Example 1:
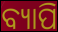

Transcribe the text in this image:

ବ୍ଯାପି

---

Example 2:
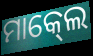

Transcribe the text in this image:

ମାକ୍‍ଲେ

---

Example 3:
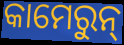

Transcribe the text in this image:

କାମେରୁନ୍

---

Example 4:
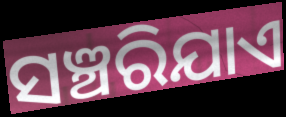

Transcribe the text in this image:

ସଞ୍ଚରିଯାଏ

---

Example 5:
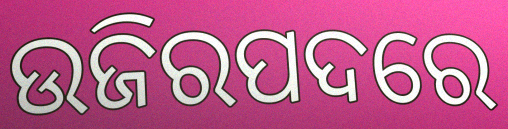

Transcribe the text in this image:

ଉଜିରପଦରେ